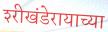
श्रीखंडेरायाच्या